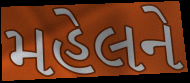
મહેલને